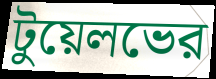
টুয়েলভের